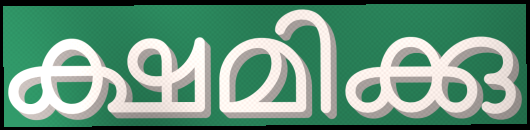
ക്ഷമിക്കു